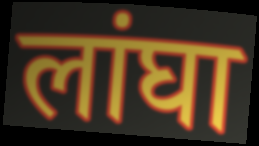
लांघा